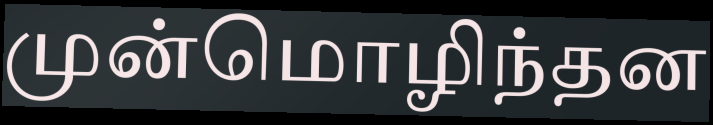
முன்மொழிந்தன